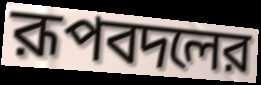
রূপবদলের